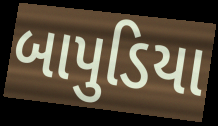
બાપુડિયા